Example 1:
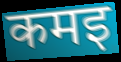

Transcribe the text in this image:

कमइ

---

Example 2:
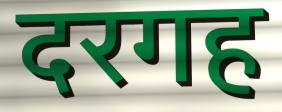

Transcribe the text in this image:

दरगह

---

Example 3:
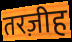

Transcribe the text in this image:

तरज़ीह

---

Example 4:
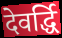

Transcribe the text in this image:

देवर्द्धि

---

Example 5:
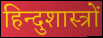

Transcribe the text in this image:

हिन्दुशास्त्रों